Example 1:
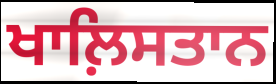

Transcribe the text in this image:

ਖਾਲ਼ਿਸਤਾਨ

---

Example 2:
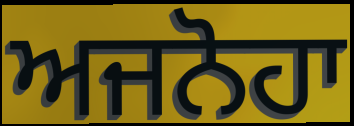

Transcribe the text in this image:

ਅਜਨੋਹਾ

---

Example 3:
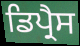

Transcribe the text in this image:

ਡਿਪ੍ਰੈਸ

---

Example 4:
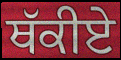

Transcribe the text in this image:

ਥੱਕੀਏ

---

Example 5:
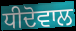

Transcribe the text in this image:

ਧੀਦੋਵਾਲ